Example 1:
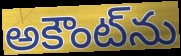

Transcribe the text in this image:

అకౌంట్‌ను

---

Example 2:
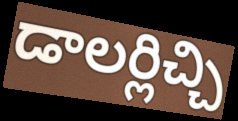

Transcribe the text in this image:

డాలర్లిచ్చి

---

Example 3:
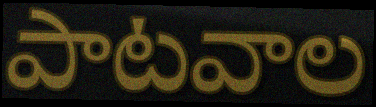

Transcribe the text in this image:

పాటవాల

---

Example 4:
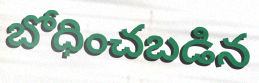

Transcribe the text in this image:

బోధించబడిన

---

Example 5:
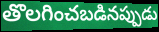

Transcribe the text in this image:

తొలగించబడినప్పుడు